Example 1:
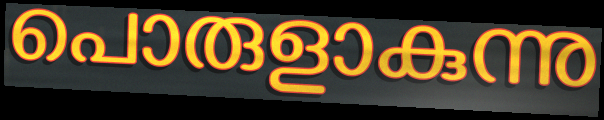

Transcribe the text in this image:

പൊരുളാകുന്നു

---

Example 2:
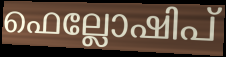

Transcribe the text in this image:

ഫെല്ലോഷിപ്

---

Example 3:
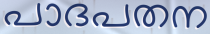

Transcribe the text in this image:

പാദപതന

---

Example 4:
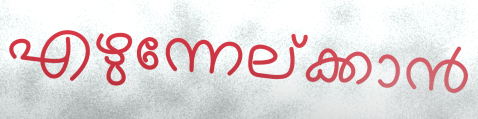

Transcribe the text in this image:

എഴുന്നേല്ക്കാൻ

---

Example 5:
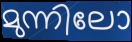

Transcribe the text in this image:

മുന്നിലോ